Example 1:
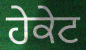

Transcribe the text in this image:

ਹੇਕੇਟ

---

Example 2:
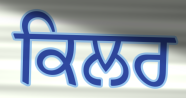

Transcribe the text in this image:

ਕਿਲਰ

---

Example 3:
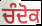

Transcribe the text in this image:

ਚੰਦੋਕ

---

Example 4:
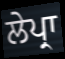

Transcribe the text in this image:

ਲੇਪ੍ਰਾ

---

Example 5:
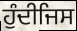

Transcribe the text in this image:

ਹੁੰਦੀਜਿਸ